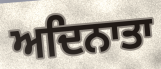
ਅਦਿਨਾਤਾ